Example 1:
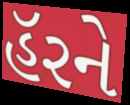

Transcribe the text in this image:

હૅરને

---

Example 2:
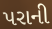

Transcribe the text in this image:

પરાની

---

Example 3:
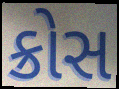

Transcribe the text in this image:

ક્રોસ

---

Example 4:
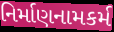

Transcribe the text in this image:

નિર્માણનામકર્મ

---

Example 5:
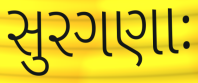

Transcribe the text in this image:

સુરગણાઃ